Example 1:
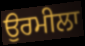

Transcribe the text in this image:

ਉਰਮੀਲਾ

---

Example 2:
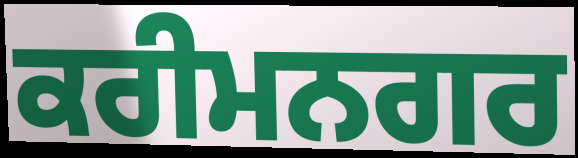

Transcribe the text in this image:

ਕਰੀਮਨਗਰ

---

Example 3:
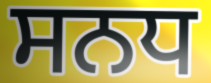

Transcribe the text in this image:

ਸਨਧ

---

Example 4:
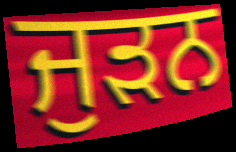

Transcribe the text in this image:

ਜੁਡ਼ਨ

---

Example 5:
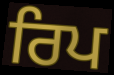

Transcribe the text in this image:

ਰਿਪ